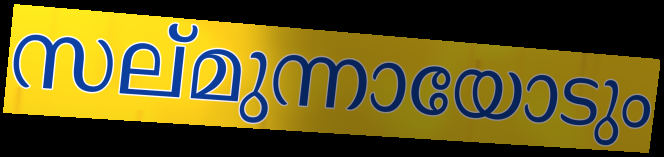
സല്മുന്നായോടും